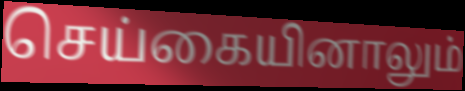
செய்கையினாலும்